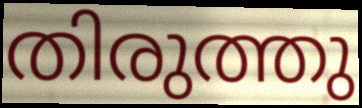
തിരുത്തു